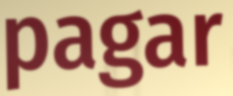
pagar